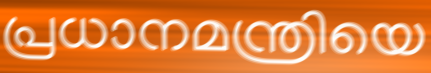
പ്രധാനമന്ത്രിയെ